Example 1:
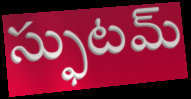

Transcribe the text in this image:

స్ఫుటమ్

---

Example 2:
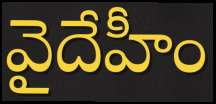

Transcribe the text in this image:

వైదేహీం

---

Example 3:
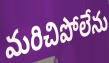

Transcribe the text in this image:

మరిచిపోలేను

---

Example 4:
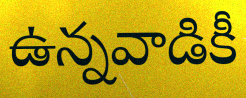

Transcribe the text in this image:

ఉన్నవాడికీ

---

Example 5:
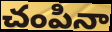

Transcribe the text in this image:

చంపినా